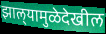
झाल्यामुळेदेखील